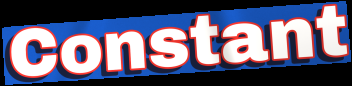
Constant